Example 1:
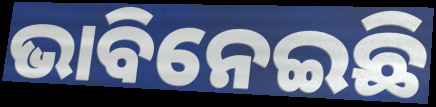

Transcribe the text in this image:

ଭାବିନେଇଛି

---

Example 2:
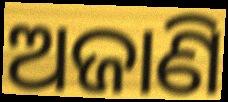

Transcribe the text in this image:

ଅଜାଣି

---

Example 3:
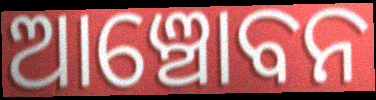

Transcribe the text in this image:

ଆଞ୍ଚୋବନ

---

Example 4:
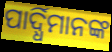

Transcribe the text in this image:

ପାର୍ଦ୍ଧିମାନଙ୍କ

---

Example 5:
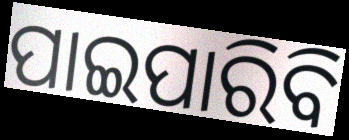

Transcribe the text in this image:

ପାଇପାରିବି